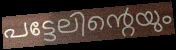
പട്ടേലിന്റെയും